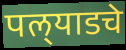
पल्याडचे